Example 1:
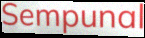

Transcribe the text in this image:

Sempunal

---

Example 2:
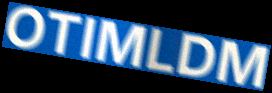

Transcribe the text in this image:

OTIMLDM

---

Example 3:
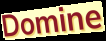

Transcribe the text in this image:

Domine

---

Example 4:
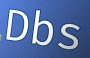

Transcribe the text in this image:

Dbs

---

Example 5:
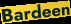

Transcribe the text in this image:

Bardeen